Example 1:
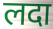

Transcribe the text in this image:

लदा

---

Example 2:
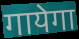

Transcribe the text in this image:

गायेगा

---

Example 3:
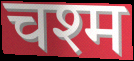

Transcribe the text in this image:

चश्म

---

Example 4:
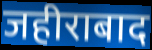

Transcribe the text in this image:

जहीराबाद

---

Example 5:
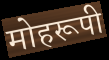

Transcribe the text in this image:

मोहरूपी